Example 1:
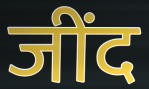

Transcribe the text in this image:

जींद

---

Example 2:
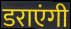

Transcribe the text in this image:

डराएंगी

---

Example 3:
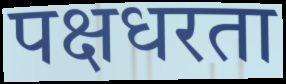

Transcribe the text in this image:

पक्षधरता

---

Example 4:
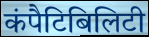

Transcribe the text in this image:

कंपैटिबिलिटी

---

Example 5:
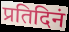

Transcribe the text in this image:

प्रतिदिनं